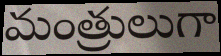
మంత్రులుగా